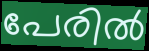
പേരിൽ